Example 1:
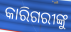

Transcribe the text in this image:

କାରିଗରୀଙ୍କୁ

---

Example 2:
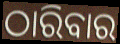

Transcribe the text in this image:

ଠାରିବାର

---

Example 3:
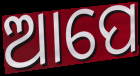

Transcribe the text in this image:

ଆପେ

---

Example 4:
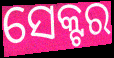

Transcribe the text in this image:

ସେକ୍ଟର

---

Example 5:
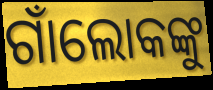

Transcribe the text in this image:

ଗାଁଲୋକଙ୍କୁ